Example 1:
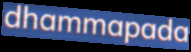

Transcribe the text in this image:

dhammapada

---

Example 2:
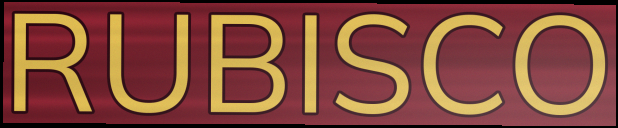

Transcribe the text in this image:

RUBISCO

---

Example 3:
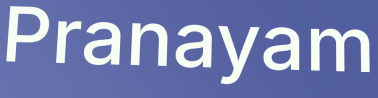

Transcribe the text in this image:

Pranayam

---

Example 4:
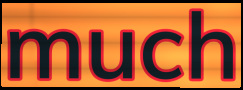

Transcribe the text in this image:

much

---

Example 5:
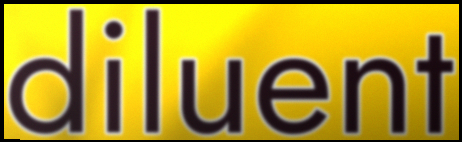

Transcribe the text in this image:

diluent